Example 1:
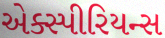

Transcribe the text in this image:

એક્સ્પીરિયન્સ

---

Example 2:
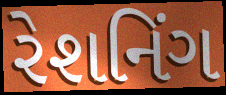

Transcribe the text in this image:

રેશનિંગ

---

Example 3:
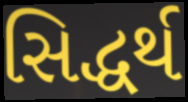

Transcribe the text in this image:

સિદ્ધર્થ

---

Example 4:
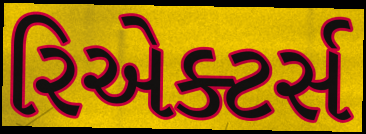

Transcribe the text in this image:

રિએક્ટર્સ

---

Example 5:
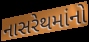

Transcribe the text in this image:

નાસરેથમાંનો